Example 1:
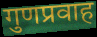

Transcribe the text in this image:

गुणप्रवाह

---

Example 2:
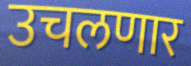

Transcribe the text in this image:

उचलणार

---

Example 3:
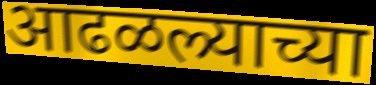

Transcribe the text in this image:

आढळल्याच्या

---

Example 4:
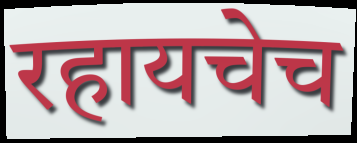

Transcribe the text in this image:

रहायचेच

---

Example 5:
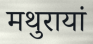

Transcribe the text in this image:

मथुरायां